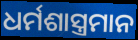
ଧର୍ମଶାସ୍ତ୍ରମାନ